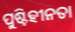
ପୁଷ୍ଟିହୀନତା